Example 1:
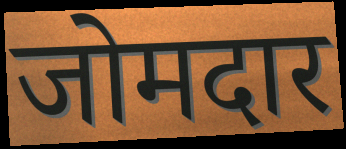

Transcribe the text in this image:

जोमदार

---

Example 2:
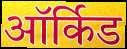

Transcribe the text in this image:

ऑर्किड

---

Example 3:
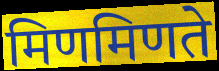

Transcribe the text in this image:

मिणमिणते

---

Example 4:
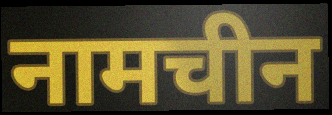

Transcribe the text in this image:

नामचीन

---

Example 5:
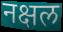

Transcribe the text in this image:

नक्षल